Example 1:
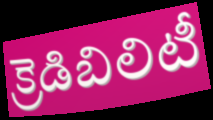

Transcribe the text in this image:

క్రెడిబిలిటీ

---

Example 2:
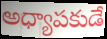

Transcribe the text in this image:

అధ్యాపకుడే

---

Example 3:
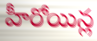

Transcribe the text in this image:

హీరోయిన్ల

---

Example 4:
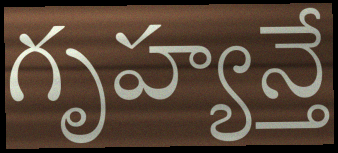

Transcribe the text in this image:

గృహ్యన్తే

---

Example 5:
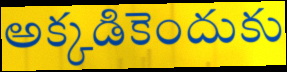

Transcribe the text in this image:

అక్కడికెందుకు